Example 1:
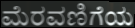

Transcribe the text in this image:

ಮೆರವಣಿಗೆಯ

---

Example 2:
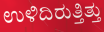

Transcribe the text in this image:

ಉಳಿದಿರುತ್ತಿತ್ತು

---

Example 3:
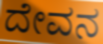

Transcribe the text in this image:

ದೇವನ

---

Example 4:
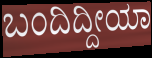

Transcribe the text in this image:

ಬಂದಿದ್ದೀಯಾ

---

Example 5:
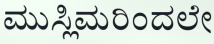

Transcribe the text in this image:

ಮುಸ್ಲಿಮರಿಂದಲೇ